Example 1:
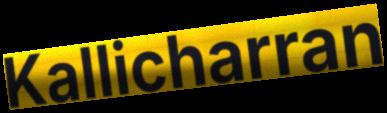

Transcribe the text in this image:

Kallicharran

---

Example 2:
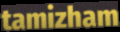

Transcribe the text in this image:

tamizham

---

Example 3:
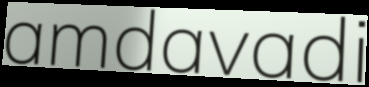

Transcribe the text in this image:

amdavadi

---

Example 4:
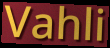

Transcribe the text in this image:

Vahli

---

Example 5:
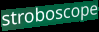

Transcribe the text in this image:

stroboscope